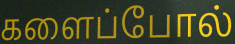
களைப்போல்